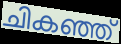
ചികഞ്ഞ്